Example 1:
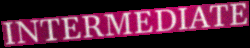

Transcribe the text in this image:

INTERMEDIATE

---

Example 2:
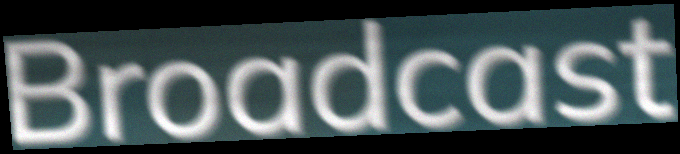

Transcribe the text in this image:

Broadcast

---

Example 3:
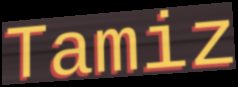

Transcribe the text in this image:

Tamiz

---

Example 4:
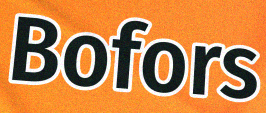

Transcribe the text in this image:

Bofors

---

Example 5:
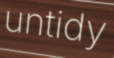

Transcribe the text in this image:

untidy